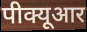
पीक्यूआर